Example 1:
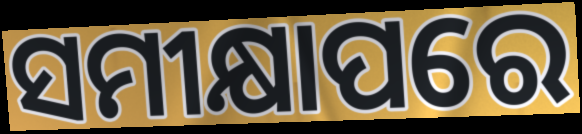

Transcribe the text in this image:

ସମୀକ୍ଷାପରେ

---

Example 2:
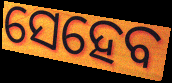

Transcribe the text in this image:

ସେହେବ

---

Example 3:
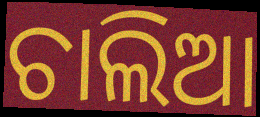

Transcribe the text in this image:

ଚାଲିଆ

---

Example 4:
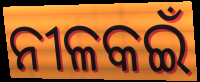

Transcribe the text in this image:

ନୀଳକଇଁ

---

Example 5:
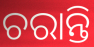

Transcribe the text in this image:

ଚରାନ୍ତି